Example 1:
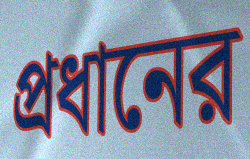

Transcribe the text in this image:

প্রধানের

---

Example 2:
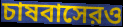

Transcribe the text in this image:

চাষবাসেরও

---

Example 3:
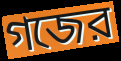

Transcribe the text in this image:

গজের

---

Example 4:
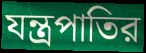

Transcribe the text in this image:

যন্ত্রপাতির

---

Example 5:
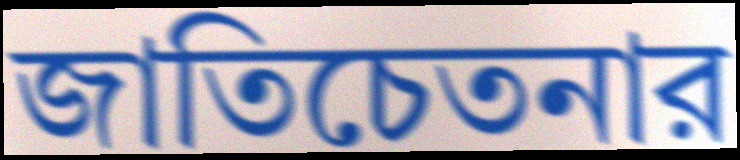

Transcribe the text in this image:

জাতিচেতনার